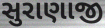
સુરાણાજી